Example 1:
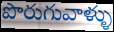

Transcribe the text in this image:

పొరుగువాళ్ళు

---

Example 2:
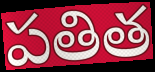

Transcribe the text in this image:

పతిత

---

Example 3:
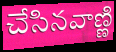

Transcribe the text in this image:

చేసినవాణ్ణి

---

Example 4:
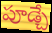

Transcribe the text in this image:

పూడ్చే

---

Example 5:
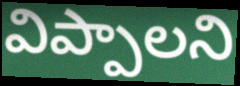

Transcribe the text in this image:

విప్పాలని